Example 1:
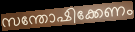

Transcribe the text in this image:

സന്തോഷിക്കേണം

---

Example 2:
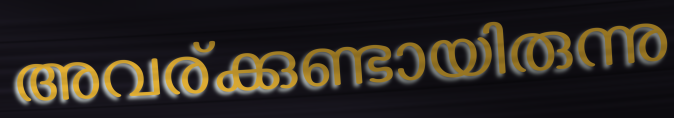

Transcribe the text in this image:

അവര്ക്കുണ്ടായിരുന്നു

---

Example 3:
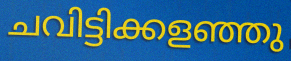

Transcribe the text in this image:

ചവിട്ടിക്കളഞ്ഞു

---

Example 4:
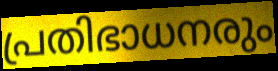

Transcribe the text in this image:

പ്രതിഭാധനരും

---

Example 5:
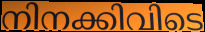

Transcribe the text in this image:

നിനക്കിവിടെ